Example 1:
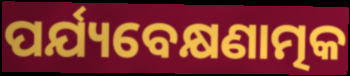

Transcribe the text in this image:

ପର୍ଯ୍ୟବେକ୍ଷଣାତ୍ମକ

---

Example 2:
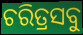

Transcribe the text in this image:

ଚରିତ୍ରସବୁ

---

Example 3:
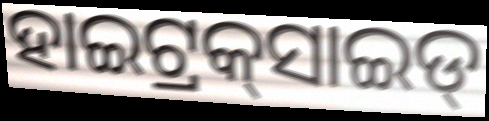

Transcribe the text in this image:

ହାଇଟ୍ରକ୍‌ସାଇଡ୍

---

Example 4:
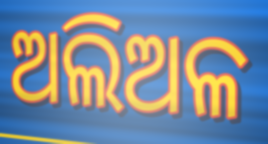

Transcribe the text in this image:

ଅଲିଅଳ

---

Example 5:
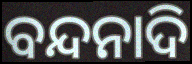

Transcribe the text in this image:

ବନ୍ଦନାଦି